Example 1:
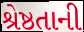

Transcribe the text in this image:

શ્રેષ્ઠતાની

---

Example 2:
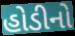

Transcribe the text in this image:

હોડીનો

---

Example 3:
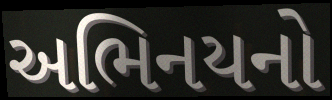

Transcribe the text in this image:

અભિનયનો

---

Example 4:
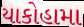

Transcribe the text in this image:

યાકોહામા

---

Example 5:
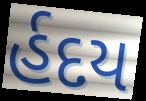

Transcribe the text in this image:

ર્હદય